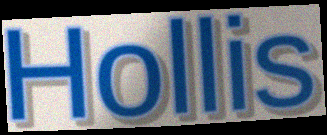
Hollis